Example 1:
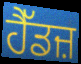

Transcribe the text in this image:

ਹੈੱਡਜ਼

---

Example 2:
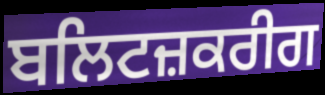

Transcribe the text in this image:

ਬਲਿਟਜ਼ਕਰੀਗ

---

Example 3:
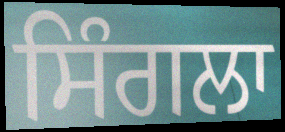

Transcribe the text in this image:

ਸਿੰਗਲਾ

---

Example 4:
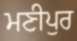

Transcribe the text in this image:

ਮਣੀਪੁਰ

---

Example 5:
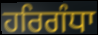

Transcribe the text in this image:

ਹਰਿਗੰਧਾ